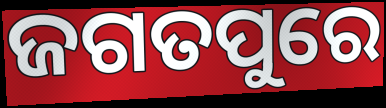
ଜଗତପୁରେ